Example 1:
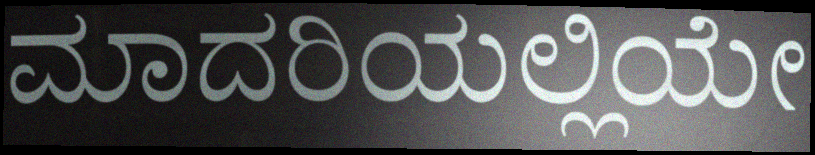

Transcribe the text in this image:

ಮಾದರಿಯಲ್ಲಿಯೇ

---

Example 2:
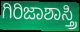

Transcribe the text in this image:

ಗಿರಿಜಾಶಾಸ್ತ್ರಿ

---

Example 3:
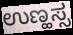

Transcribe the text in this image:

ಉಣ್ಹಸ್ಸ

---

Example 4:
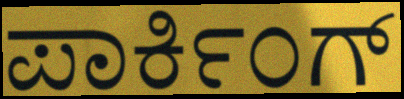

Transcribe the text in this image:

ಪಾರ್ಕಿಂಗ್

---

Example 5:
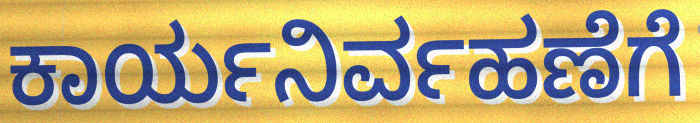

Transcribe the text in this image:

ಕಾರ್ಯನಿರ್ವಹಣೆಗೆ